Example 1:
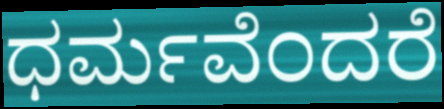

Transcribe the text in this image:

ಧರ್ಮವೆಂದರೆ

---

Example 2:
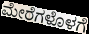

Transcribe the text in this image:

ಮೇರೆಗಳೊಳಗೆ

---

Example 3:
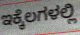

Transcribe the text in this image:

ಇಕ್ಕೆಲಗಳಲ್ಲಿ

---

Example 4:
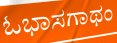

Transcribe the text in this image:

ಓಭಾಸಗಾಥಂ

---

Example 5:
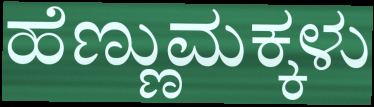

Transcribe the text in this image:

ಹೆಣ್ಣುಮಕ್ಕಳು